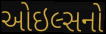
ઓઇલ્સનો